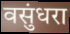
वसुंधरा